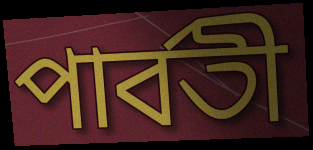
পার্বতী